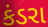
કંડરા